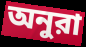
অনুরা